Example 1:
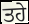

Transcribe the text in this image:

ਤਹੇ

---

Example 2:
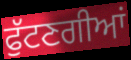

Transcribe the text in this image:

ਫੁੱਟਣਗੀਆਂ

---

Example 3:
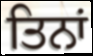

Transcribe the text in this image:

ਤਿਨਾਂ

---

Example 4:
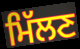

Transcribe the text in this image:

ਮਿੱਲਣ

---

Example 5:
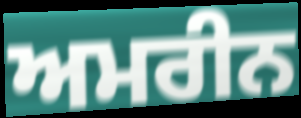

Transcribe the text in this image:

ਅਮਰੀਨ